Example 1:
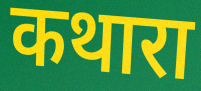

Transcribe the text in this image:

कथारा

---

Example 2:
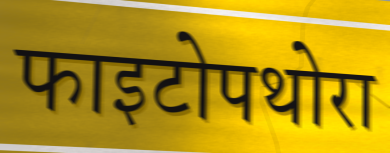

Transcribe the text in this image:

फाइटोपथोरा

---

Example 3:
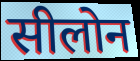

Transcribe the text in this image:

सीलोन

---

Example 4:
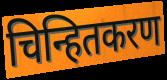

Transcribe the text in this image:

चिन्हितकरण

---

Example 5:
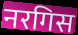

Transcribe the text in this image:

नरगिस